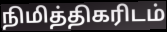
நிமித்திகரிடம்